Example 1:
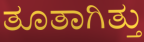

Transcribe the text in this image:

ತೂತಾಗಿತ್ತು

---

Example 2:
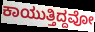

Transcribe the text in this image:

ಕಾಯುತ್ತಿದ್ದವೋ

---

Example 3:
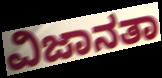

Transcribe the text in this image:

ವಿಜಾನತಾ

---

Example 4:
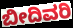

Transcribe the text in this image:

ಬೀದಿವರಿ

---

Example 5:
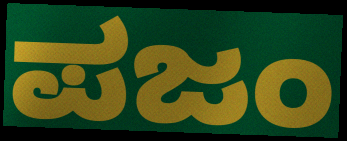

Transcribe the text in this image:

ಪಜಂ